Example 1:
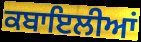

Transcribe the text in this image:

ਕਬਾਇਲੀਆਂ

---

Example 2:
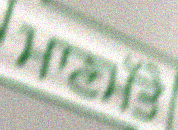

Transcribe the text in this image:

ਮਾਣਮੱਤੇ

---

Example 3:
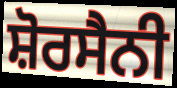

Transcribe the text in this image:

ਸ਼ੋਰਸੈਨੀ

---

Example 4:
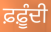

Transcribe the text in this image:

ਫ਼ਫ਼ੂੰਦੀ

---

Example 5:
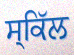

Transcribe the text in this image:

ਸ੍ਕਿੱਲ